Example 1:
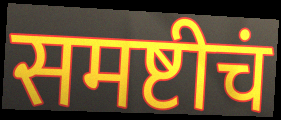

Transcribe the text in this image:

समष्टीचं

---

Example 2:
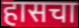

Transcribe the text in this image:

हासचा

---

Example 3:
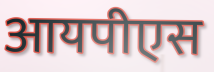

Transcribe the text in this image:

आयपीएस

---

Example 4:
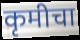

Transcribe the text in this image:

कृमीचा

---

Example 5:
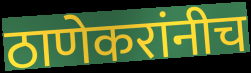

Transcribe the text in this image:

ठाणेकरांनीच